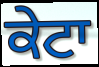
ਕੇਟਾ